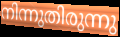
നിന്നുതിരുന്നു